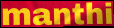
manthi